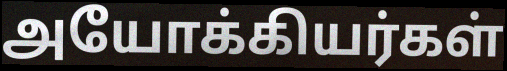
அயோக்கியர்கள்